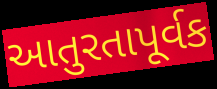
આતુરતાપૂર્વક